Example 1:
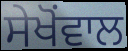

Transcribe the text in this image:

ਸੇਖੋਂਵਾਲ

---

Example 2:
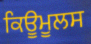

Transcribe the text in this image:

ਕਿਊਮੂਲਸ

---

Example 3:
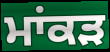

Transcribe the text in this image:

ਮਾਂਕੜ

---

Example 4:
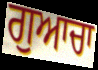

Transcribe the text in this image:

ਗੁਆਚਾ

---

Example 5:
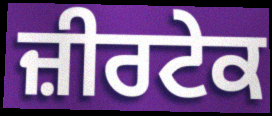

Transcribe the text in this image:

ਜ਼ੀਰਟੇਕ